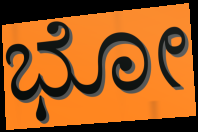
ಭೋ